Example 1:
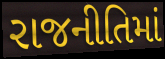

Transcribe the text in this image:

રાજનીતિમાં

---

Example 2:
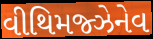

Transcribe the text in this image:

વીથિમજ્ઝેનેવ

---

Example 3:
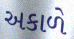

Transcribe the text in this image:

અકાળે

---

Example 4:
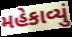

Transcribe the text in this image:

મહેકાવ્યું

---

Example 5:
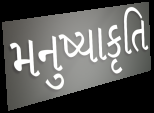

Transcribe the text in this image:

મનુષ્યાકૃતિ